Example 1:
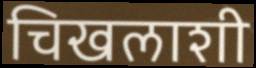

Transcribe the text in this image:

चिखलाशी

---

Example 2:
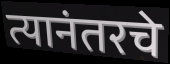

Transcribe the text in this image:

त्यानंतरचे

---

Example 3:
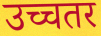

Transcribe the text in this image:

उच्चतर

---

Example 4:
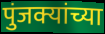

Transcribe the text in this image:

पुंजक्यांच्या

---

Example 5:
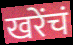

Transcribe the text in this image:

खरेंचं